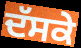
ਦੱਸਕੇ